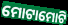
ମୋଟାମୋଟି